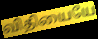
விதியையே